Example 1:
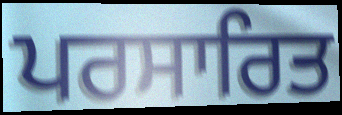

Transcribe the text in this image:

ਪਰਸਾਰਿਤ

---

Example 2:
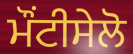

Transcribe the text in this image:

ਮੌਂਟੀਸੇਲੋ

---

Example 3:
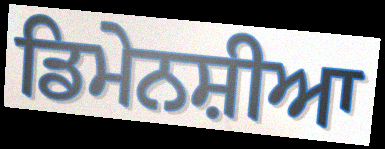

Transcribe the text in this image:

ਡਿਮੇਨਸ਼ੀਆ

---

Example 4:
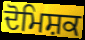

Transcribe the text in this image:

ਦੋਮਿਸ਼ਕ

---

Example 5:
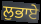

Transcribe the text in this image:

ਲੁਭਾਏ